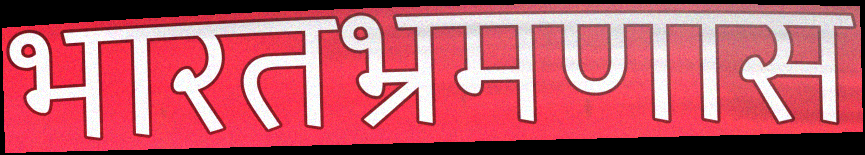
भारतभ्रमणास